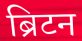
ब्रिटन